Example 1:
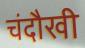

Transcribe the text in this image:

चंदौखी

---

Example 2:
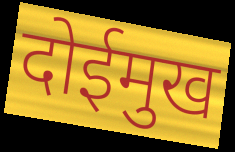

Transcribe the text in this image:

दोईमुख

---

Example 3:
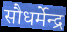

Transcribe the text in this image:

सौधर्मेन्द्र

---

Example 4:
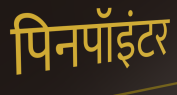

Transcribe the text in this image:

पिनपॉइंटर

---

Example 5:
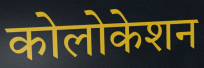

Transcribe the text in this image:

कोलोकेशन